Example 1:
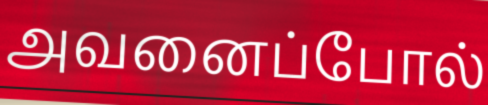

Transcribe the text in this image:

அவனைப்போல்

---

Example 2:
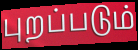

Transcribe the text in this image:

புறப்படும்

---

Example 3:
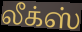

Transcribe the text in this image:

லீக்ஸ்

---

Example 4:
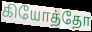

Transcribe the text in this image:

கியோத்தோ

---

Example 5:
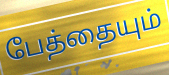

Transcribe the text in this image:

பேத்தையும்